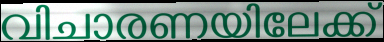
വിചാരണയിലേക്ക്